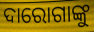
ଦାରୋଗାଙ୍କୁ